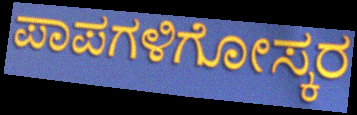
ಪಾಪಗಳಿಗೋಸ್ಕರ